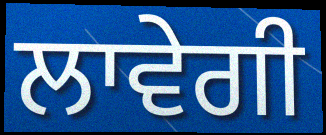
ਲਾਵੇਗੀ